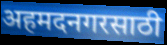
अहमदनगरसाठी